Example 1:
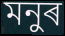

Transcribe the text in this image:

মনুৰ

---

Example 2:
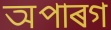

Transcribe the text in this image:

অপাৰগ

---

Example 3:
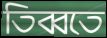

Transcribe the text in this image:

তিব্বতে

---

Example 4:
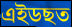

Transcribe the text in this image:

এইডছত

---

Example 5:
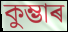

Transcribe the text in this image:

কুম্ভাৰ